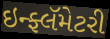
ઇન્ફ્લૅમેટરી